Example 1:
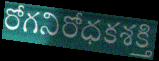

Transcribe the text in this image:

రోగనిరోధకశక్తి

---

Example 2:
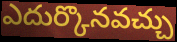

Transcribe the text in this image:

ఎదుర్కొనవచ్చు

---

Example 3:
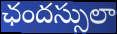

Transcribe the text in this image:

ఛందస్సులా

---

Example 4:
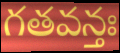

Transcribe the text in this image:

గతవన్తః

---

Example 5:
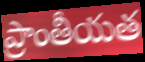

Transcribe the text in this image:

ప్రాంతీయత